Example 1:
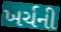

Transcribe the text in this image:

ખર્ચની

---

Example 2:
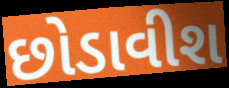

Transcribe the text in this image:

છોડાવીશ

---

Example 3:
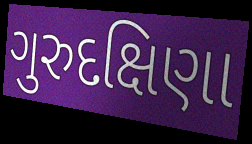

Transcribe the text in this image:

ગુરુદક્ષિણા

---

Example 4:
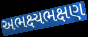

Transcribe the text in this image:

અભક્ષ્યભક્ષણ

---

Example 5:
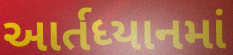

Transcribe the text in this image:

આર્તધ્યાનમાં